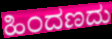
ಹಿಂದಣದು